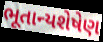
ભૂતાન્યશેષેણ